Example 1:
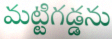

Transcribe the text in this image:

మట్టిగడ్డను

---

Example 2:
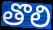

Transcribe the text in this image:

తొలి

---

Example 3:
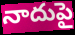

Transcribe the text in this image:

నాదుపై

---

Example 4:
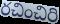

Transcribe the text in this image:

రచించిరి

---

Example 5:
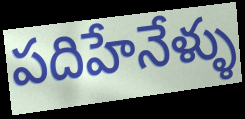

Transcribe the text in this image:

పదిహేనేళ్ళు